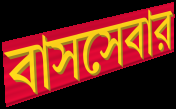
বাসসেবার